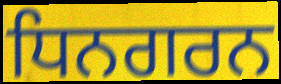
ਧਿਨਗਰਨ